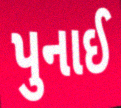
પુનાઈ